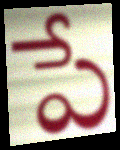
పే